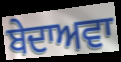
ਬੇਦਾਅਵਾ